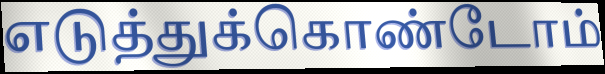
எடுத்துக்கொண்டோம்